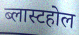
ब्लास्टहोल